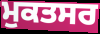
ਮੁਕਤਸਰ